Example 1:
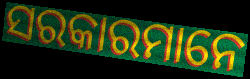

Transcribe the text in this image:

ସରକାରମାନେ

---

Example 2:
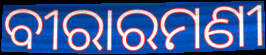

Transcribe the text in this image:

ବୀରାରମଣୀ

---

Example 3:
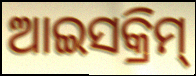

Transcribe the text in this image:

ଆଇସକ୍ରିମ୍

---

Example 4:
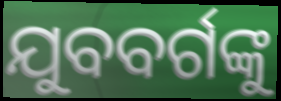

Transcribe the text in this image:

ଯୁବବର୍ଗଙ୍କୁ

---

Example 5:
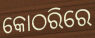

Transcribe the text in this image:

କୋଠରିରେ